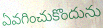
ఏవగించుకొందును